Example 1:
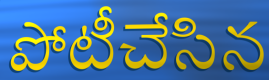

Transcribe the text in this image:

పోటీచేసిన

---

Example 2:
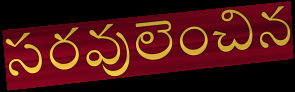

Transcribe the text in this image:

సరవులెంచిన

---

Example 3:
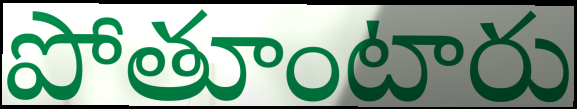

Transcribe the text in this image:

పోతూంటారు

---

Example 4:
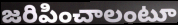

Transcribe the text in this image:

జరిపించాలంటూ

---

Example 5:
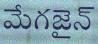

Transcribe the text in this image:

మేగజైన్